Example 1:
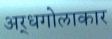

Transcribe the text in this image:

अर्धगोलाकार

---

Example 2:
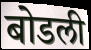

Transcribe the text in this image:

बोडली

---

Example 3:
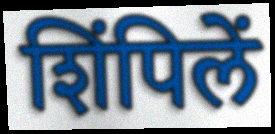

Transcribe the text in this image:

शिंपिलें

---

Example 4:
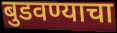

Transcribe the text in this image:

बुडवण्याचा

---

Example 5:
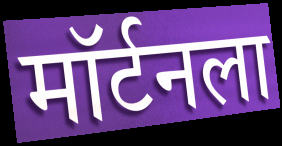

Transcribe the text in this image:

मॉर्टनला